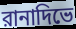
রানাদিভে